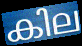
കില